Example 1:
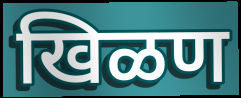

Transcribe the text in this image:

खिळण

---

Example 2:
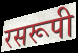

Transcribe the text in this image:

रसरूपी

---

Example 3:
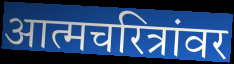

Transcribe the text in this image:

आत्मचरित्रांवर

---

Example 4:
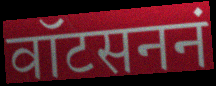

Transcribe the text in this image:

वॉटसननं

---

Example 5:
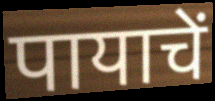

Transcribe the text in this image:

पायाचें